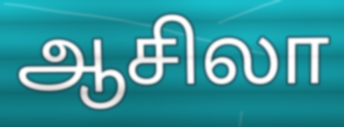
ஆசிலா